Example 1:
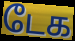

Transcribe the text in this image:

டேக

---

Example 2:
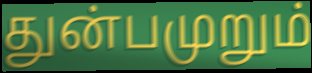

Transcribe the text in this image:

துன்பமுறும்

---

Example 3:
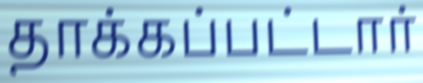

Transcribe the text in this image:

தாக்கப்பட்டார்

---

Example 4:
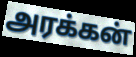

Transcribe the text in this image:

அரக்கன்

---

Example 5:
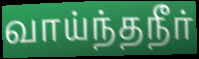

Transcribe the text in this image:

வாய்ந்தநீர்